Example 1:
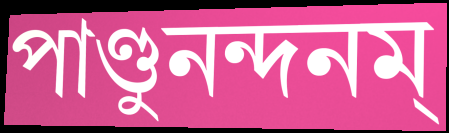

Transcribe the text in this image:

পাণ্ডুনন্দনম্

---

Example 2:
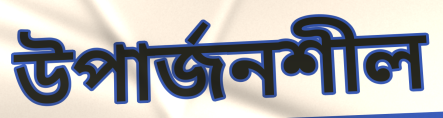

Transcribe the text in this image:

উপার্জনশীল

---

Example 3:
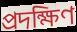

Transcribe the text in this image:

প্রদক্ষিণ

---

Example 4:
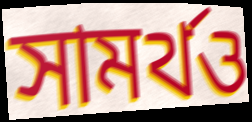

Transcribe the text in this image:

সামর্থও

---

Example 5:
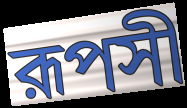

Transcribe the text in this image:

রূপসী